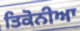
ਤਿਕੋਨੀਆ